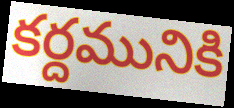
కర్దమునికి